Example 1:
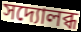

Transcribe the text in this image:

সদ্যোলব্ধ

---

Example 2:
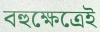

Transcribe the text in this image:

বহুক্ষেত্রেই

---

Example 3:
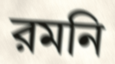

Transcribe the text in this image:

রমনি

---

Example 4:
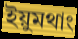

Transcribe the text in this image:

ইয়ুমথাং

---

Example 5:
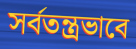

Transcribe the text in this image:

সর্বতন্ত্রভাবে